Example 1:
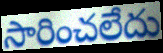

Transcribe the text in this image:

సారించలేదు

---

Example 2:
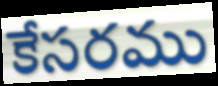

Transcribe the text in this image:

కేసరము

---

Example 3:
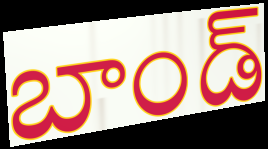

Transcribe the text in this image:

బాండ్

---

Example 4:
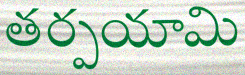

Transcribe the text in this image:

తర్పయామి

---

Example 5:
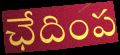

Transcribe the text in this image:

ఛేదింప